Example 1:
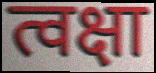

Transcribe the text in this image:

त्वक्षा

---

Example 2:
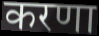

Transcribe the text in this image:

करणा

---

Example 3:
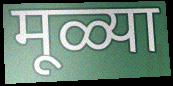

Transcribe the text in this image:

मूळ्या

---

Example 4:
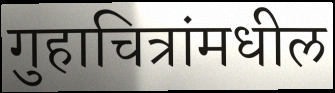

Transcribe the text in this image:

गुहाचित्रांमधील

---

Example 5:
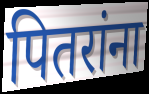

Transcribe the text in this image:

पितरांना